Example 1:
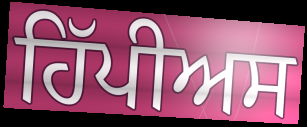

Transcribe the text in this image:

ਹਿੱਪੀਅਸ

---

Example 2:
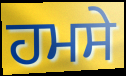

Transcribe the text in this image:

ਹਮਸੇ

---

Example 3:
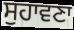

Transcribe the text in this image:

ਸੁਹਾਵਣਾ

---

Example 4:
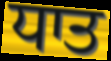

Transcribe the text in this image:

ਧਾਤ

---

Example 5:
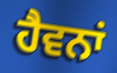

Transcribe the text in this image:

ਹੈਵਨਾਂ